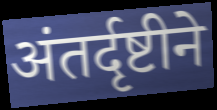
अंतर्दृष्टीने